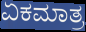
ಏಕಮಾತ್ರ